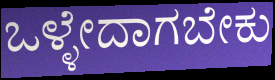
ಒಳ್ಳೇದಾಗಬೇಕು